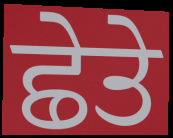
ਛੇਤੇ